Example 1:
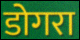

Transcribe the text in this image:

डोगरा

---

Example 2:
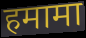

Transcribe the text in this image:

हमामा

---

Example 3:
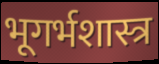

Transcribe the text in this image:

भूगर्भशास्त्र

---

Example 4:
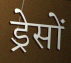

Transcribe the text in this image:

ड्रेसों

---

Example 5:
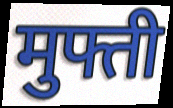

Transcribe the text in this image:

मुफ्ती